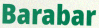
Barabar